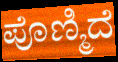
ಪೊಣ್ಮಿದೆ